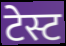
टेस्ट